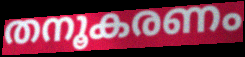
തനൂകരണം